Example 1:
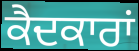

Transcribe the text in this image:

ਕੈਦਕਾਰਾਂ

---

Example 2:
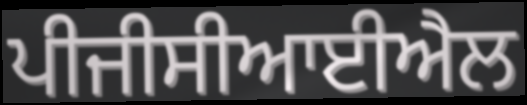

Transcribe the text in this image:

ਪੀਜੀਸੀਆਈਐਲ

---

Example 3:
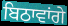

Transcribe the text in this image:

ਬਿਠਾਵਾਂਗੇ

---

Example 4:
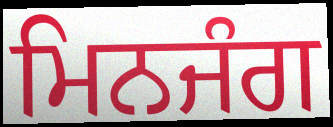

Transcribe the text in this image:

ਮਿਨਜੰਗ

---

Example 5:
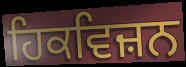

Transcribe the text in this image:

ਹਿਕਵਿਜ਼ਨ